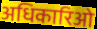
अधिकारिओ